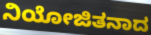
ನಿಯೋಜಿತನಾದ